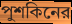
পুশকিনের